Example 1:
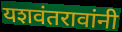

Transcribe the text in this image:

यशवंतरावांनी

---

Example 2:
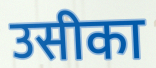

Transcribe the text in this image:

उसीका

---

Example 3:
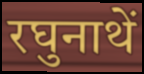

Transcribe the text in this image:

रघुनाथें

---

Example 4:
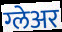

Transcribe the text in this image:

ग्लेअर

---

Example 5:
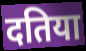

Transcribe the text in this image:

दतिया